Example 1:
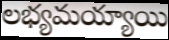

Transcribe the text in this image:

లభ్యమయ్యాయి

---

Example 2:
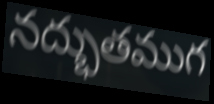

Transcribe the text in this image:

నద్భుతముగ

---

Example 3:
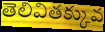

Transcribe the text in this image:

తెలివితక్కువ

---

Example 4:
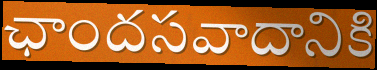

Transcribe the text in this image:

ఛాందసవాదానికి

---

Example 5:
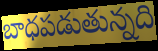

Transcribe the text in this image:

బాధపడుతున్నది